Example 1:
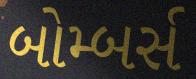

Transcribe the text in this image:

બોમ્બર્સ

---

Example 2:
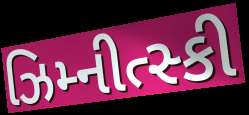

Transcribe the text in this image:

ઝિમ્નીત્સ્કી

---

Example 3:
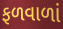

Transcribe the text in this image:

ફળવાળાં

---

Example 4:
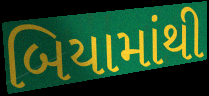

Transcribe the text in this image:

બિયામાંથી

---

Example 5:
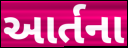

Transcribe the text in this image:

આર્તના